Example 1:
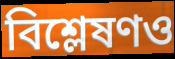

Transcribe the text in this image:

বিশ্লেষণও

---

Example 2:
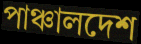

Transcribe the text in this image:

পাঞ্চালদেশ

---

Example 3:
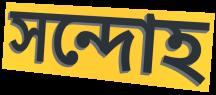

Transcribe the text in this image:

সন্দোহ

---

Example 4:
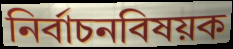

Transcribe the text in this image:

নির্বাচনবিষয়ক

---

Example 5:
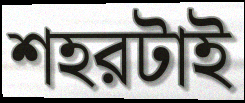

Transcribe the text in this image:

শহরটাই